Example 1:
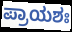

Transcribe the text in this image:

ಪ್ರಾಯಶಃ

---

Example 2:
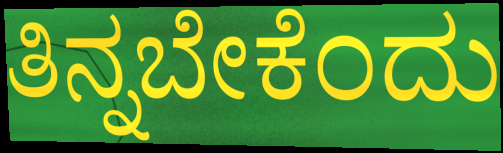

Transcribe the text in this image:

ತಿನ್ನಬೇಕೆಂದು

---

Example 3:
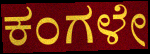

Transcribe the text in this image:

ಕಂಗಳೇ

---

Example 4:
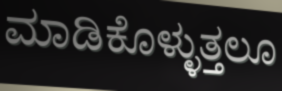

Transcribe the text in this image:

ಮಾಡಿಕೊಳ್ಳುತ್ತಲೂ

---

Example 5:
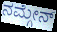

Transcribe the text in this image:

ನಮ್ಗೇನ್